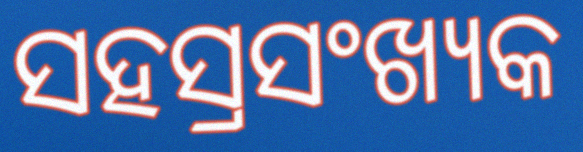
ସହସ୍ରସଂଖ୍ୟକ